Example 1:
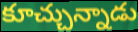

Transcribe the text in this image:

కూచ్చున్నాడు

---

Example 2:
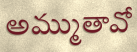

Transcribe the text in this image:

అమ్ముతావో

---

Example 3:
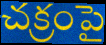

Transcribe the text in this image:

చక్రంపై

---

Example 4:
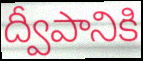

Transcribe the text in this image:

ద్వీపానికి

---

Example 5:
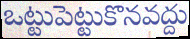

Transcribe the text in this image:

ఒట్టుపెట్టుకొనవద్దు